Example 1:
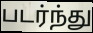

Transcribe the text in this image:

படர்ந்து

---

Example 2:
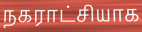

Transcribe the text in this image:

நகராட்சியாக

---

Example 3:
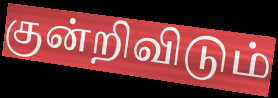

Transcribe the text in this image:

குன்றிவிடும்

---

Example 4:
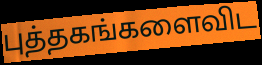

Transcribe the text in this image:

புத்தகங்களைவிட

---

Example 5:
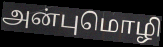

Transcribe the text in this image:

அன்புமொழி